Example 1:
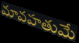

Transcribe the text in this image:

మావహతుమే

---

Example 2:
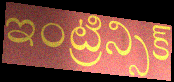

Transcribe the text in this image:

ఇంట్రిన్సిక్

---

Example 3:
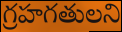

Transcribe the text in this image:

గ్రహగతులని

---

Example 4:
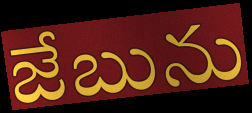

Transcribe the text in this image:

జేబును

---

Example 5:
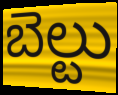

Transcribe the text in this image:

బెల్టు